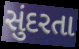
સુંદરતા